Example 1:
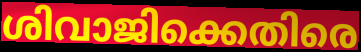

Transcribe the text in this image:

ശിവാജിക്കെതിരെ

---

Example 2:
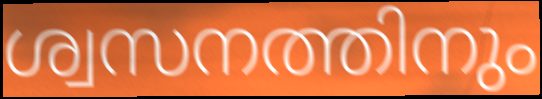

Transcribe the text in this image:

ശ്വസനത്തിനും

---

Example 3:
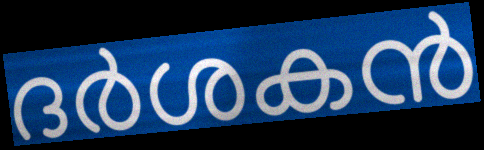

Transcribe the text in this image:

ദർശകൻ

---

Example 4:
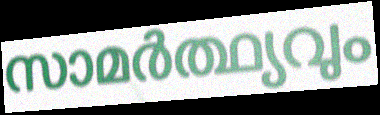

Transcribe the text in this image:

സാമർത്ഥ്യവും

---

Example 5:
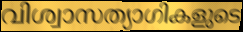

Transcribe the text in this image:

വിശ്വാസത്യാഗികളുടെ